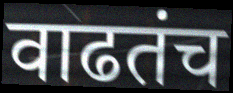
वाढतंच